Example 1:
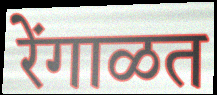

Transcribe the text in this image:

रेंगाळत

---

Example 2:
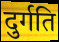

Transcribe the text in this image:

दुर्गति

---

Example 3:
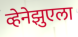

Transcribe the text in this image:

व्हेनेझुएला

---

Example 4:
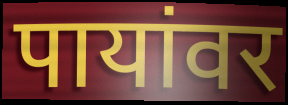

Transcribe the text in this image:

पायांवर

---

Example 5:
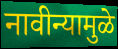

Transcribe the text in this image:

नावीन्यामुळे